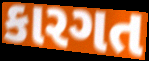
કારગત